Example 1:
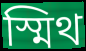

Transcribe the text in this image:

স্মিথ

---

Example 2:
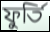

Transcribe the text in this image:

ফুৰ্তি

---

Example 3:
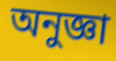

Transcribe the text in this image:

অনুজ্ঞা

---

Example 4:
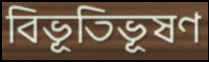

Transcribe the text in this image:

বিভূতিভূষণ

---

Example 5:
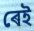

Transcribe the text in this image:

ৰেই